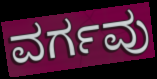
ವರ್ಗವು